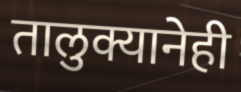
तालुक्यानेही